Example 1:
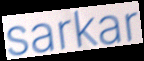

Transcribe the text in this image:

sarkar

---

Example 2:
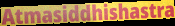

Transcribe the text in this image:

Atmasiddhishastra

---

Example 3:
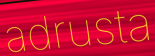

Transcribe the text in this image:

adrusta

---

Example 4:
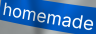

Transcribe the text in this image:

homemade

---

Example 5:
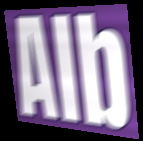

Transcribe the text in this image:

Alb